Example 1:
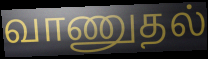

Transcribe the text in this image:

வாணுதல்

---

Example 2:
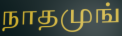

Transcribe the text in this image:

நாதமுங்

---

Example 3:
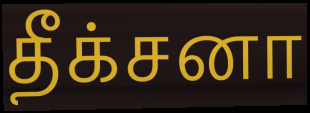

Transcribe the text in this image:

தீக்சனா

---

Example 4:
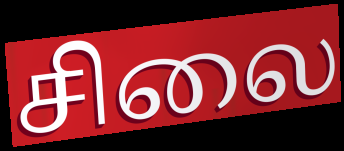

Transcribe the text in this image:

சிலை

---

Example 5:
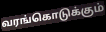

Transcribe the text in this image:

வரங்கொடுக்கும்